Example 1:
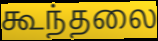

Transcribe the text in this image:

கூந்தலை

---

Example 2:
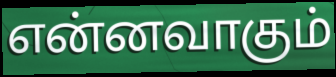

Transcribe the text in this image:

என்னவாகும்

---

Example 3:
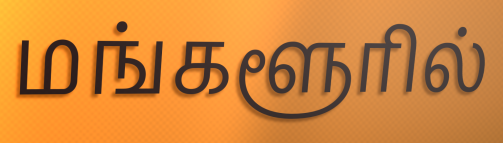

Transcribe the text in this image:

மங்களூரில்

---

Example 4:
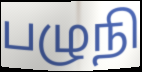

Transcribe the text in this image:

பழுநி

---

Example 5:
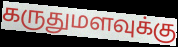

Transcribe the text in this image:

கருதுமளவுக்கு